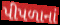
પીપળાનાં